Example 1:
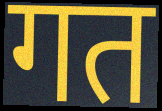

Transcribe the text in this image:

गत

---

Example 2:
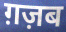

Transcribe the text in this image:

ग़ज़ब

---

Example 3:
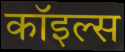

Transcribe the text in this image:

कॉइल्स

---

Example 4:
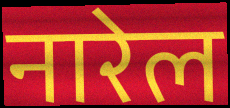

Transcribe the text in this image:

नारेल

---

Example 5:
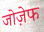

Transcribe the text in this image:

जोज़ेफ